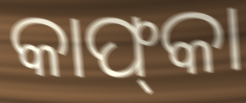
କାଫ୍‍କା